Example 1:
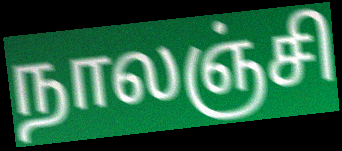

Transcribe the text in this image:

நாலஞ்சி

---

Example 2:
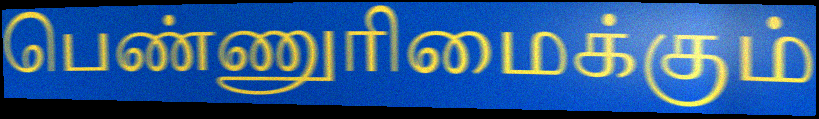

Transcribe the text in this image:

பெண்ணுரிமைக்கும்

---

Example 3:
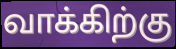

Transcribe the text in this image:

வாக்கிற்கு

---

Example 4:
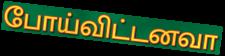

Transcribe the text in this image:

போய்விட்டனவா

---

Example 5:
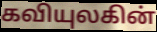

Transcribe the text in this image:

கவியுலகின்